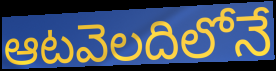
ఆటవెలదిలోనే